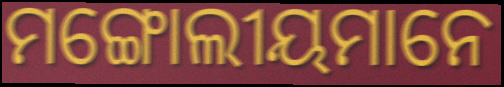
ମଙ୍ଗୋଲୀୟମାନେ